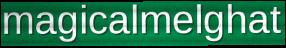
magicalmelghat